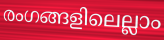
രംഗങ്ങളിലെല്ലാം